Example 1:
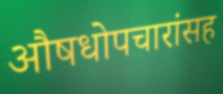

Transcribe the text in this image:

औषधोपचारांसह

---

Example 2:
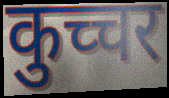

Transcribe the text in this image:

कुच्चर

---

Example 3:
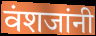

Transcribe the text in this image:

वंशजांनी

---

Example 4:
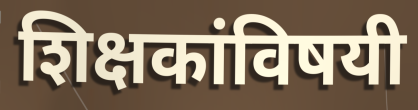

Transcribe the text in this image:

शिक्षकांविषयी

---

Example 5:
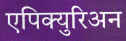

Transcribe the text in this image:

एपिक्युरिअन